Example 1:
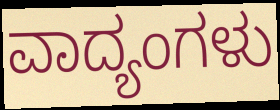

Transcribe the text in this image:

ವಾದ್ಯಂಗಳು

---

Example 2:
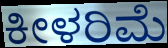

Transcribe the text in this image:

ಕೀಳರಿಮೆ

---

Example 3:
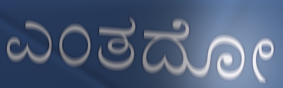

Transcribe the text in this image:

ಎಂತದೋ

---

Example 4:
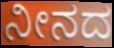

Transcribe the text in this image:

ನೀನದ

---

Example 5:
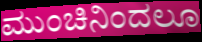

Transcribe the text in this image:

ಮುಂಚಿನಿಂದಲೂ